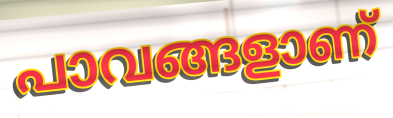
പാവങ്ങളാണ്